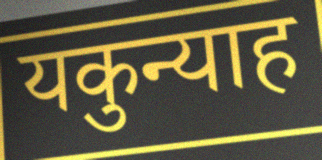
यकुन्याह